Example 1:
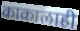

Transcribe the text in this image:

काकालाही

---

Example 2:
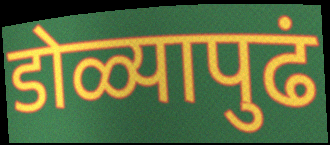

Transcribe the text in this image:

डोळ्यापुढं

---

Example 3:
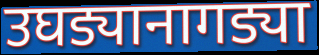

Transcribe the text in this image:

उघड्यानागड्या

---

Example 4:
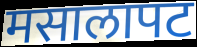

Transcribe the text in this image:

मसालापट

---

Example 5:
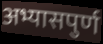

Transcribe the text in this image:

अभ्यासपुर्ण